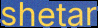
shetar